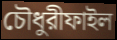
চৌধুরীফাইল